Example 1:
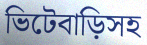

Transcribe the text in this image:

ভিটেবাড়িসহ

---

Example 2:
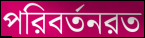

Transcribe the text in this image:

পরিবর্তনরত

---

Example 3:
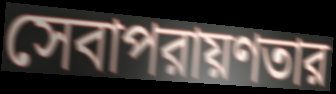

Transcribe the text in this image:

সেবাপরায়ণতার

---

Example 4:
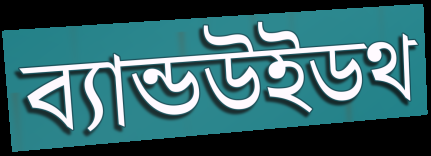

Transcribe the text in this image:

ব্যান্ডউইডথ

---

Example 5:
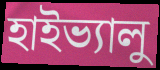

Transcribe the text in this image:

হাইভ্যালু